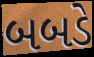
બબડે